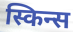
स्किन्स